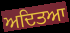
ਅਦਿਤਆ